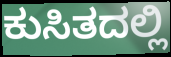
ಕುಸಿತದಲ್ಲಿ